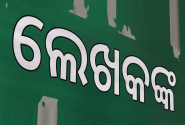
ଲେଖକଙ୍କ